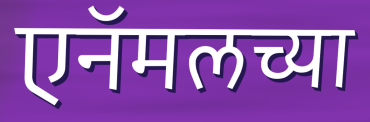
एनॅमलच्या